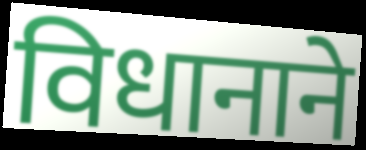
विधानाने